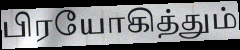
பிரயோகித்தும்